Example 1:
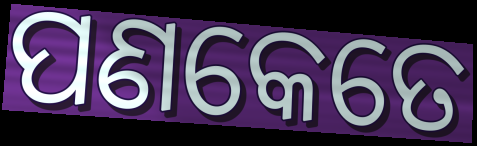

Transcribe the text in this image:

ପଣକେତେ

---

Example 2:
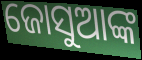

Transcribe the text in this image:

ଜୋସୁଆଙ୍କ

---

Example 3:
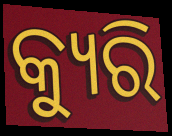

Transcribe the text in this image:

କ୍ୟୁରି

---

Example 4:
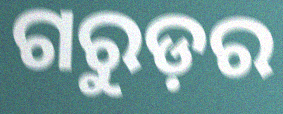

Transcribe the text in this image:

ଗରୁଡ଼ର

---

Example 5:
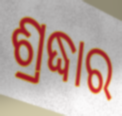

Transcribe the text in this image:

ଶ୍ରଦ୍ଧାର